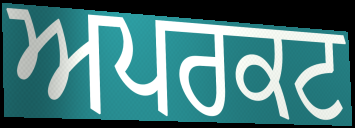
ਅਪਰਕਟ